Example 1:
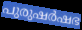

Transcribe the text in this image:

പുരുഷർഷഭ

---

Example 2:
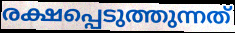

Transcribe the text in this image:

രക്ഷപ്പെടുത്തുന്നത്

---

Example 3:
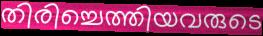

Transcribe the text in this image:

തിരിച്ചെത്തിയവരുടെ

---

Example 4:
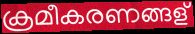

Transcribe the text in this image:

ക്രമീകരണങ്ങള്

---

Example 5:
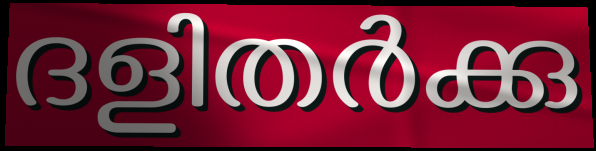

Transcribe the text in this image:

ദളിതർക്കു